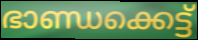
ഭാണ്ഡക്കെട്ട്